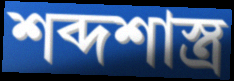
শব্দশাস্ত্র